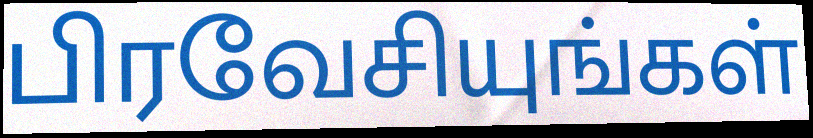
பிரவேசியுங்கள்